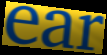
ear